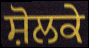
ਸ਼ੋਲਕੇ